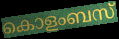
കൊളംബസ്